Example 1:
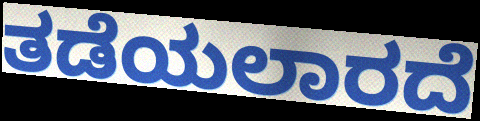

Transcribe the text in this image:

ತಡೆಯಲಾರದೆ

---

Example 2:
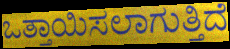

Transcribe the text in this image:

ಒತ್ತಾಯಿಸಲಾಗುತ್ತಿದೆ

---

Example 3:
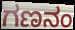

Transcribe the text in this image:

ಗಣನಂ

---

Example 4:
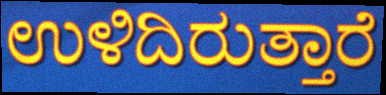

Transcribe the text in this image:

ಉಳಿದಿರುತ್ತಾರೆ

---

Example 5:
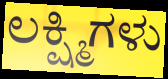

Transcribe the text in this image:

ಲಕ್ಷ್ಮಿಗಳು